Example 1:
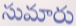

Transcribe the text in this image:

సుమారు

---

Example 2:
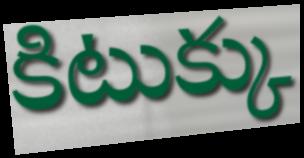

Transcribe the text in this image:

కిటుక్కు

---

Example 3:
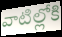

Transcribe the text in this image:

వాటిల్లోకి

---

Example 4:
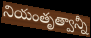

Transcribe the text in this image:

నియంతృత్వాన్నీ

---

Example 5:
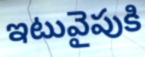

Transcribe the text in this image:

ఇటువైపుకి